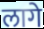
लागे